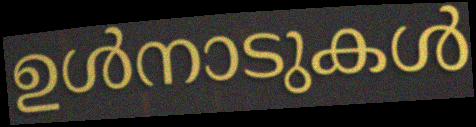
ഉൾനാടുകൾ